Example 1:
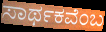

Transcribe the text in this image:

ಸಾರ್ಥಕವೆಂಬ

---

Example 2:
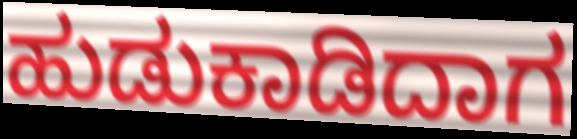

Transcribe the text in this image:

ಹುಡುಕಾಡಿದಾಗ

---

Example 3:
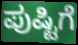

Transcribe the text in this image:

ಪುಷ್ಟಿಗೆ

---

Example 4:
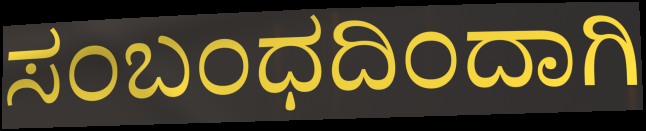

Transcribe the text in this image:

ಸಂಬಂಧದಿಂದಾಗಿ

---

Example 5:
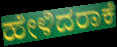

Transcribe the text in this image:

ಹೇಳಿದರಾಕೆ